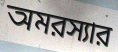
অমরস্যার